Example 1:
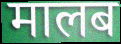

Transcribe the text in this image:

मालब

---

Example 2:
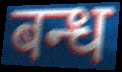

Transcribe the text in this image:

बन्ध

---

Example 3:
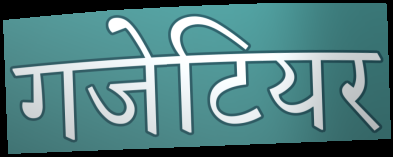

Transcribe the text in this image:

गजेटियर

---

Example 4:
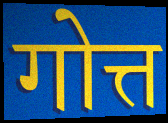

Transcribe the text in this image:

गोत्त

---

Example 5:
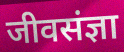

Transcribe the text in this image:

जीवसंज्ञा